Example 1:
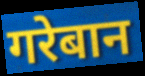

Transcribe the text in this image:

गरेबान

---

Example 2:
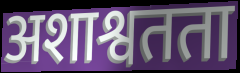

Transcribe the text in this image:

अशाश्वतता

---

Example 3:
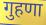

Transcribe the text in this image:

गुहणा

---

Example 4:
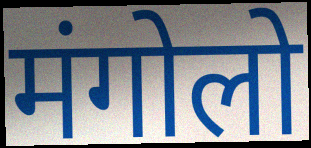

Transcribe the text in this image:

मंगोलो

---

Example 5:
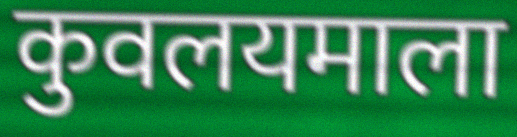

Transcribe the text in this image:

कुवलयमाला